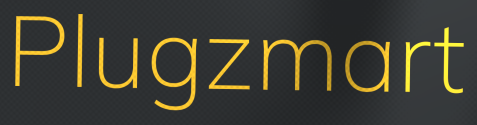
Plugzmart